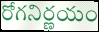
రోగనిర్ణయం